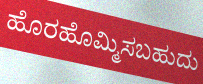
ಹೊರಹೊಮ್ಮಿಸಬಹುದು